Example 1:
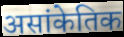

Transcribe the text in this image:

असांकेतिक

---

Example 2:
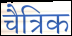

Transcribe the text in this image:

चैत्रिक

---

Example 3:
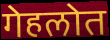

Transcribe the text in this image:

गेहलोत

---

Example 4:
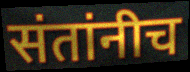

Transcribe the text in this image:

संतांनीच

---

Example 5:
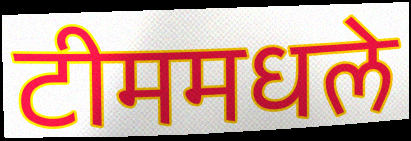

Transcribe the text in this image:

टीममधले